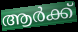
ആർക്ക്